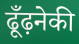
ढूँढ़नेकी